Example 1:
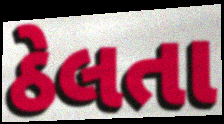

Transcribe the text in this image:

ઠેલતા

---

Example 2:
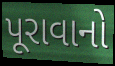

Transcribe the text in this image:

પૂરાવાનો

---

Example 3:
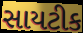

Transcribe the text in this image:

સાયટીક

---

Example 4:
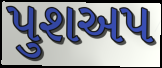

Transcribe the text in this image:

પુશઅપ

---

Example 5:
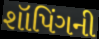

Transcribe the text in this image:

શૉપિંગની